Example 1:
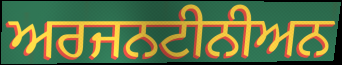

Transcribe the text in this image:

ਅਰਜਨਟੀਨੀਅਨ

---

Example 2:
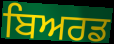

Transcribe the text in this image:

ਬਿਅਰਡ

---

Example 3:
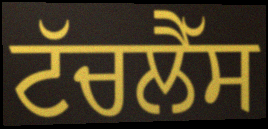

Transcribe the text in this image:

ਟੱਚਲੈੱਸ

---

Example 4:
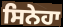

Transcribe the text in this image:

ਸਿਨੇਹਾ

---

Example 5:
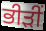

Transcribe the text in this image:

ਭੀੜੀਂ